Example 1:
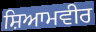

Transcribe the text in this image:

ਸ਼ਿਆਮਵੀਰ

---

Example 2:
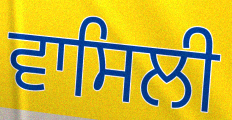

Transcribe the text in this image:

ਵਾਸਿਲੀ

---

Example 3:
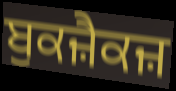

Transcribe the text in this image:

ਬੁਕਜ਼ੈਕਜ਼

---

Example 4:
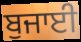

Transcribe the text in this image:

ਬੁਜਾਈ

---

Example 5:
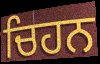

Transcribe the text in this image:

ਚਿਹਨ